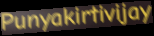
Punyakirtivijay